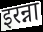
इरन्ना